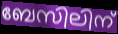
ബേസിലിന്